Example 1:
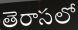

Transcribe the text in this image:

తెరాసలో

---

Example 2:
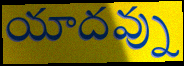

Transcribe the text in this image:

యాదవ్ను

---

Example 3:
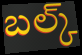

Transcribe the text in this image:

బల్క్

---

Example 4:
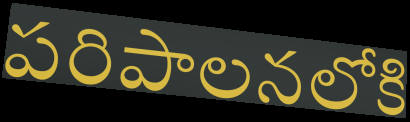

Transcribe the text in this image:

పరిపాలనలోకి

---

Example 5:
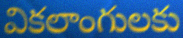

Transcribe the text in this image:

వికలాంగులకు